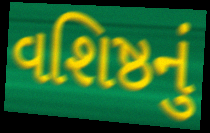
વશિષ્ઠનું